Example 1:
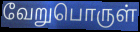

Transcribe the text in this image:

வேறுபொருள்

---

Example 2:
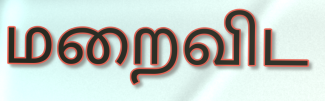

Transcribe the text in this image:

மறைவிட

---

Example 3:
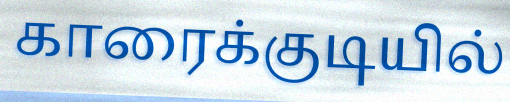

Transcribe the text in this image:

காரைக்குடியில்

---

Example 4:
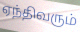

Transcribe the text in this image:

ஏந்திவரும்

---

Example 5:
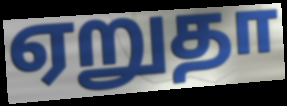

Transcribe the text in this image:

ஏறுதா